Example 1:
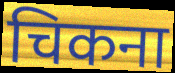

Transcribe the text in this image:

चिकना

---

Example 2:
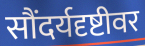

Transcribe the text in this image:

सौंदर्यदृष्टीवर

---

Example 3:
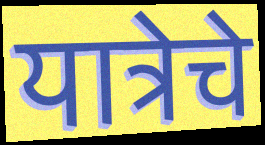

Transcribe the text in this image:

यात्रेचे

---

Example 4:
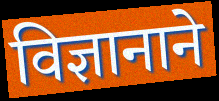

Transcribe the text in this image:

विज्ञानाने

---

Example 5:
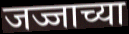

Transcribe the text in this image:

जज्जाच्या